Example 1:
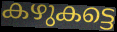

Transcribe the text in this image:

കഴുകട്ടെ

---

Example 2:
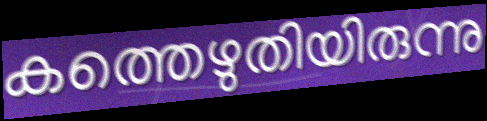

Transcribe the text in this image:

കത്തെഴുതിയിരുന്നു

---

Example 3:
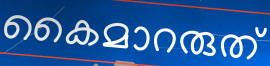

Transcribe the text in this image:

കൈമാറരുത്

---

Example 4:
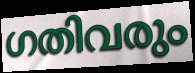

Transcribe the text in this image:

ഗതിവരും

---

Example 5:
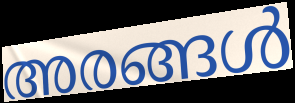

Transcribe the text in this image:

അരങ്ങൾ